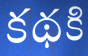
కథకి